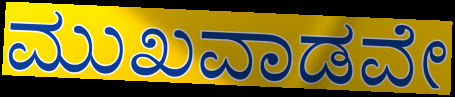
ಮುಖವಾಡವೇ